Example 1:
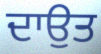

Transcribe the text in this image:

ਦਾਉਤ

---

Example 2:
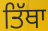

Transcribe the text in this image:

ਤਿੱਥਾ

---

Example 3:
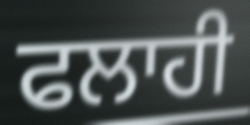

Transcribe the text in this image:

ਫਲਾਹੀ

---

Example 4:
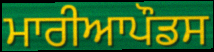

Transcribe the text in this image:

ਮਾਰੀਆਪੌਡਸ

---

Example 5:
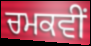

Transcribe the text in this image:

ਚਮਕਵੀਂ